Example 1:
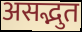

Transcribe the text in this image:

असद्भुत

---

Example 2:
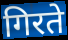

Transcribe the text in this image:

गिरते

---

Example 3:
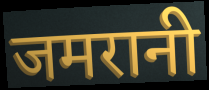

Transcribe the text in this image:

जमरानी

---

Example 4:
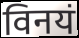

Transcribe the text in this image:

विनयं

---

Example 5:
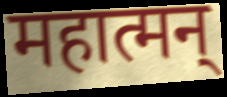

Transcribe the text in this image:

महात्मन्